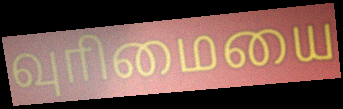
வுரிமையை